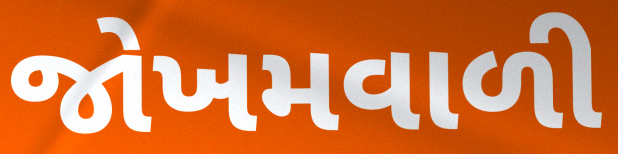
જોખમવાળી